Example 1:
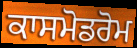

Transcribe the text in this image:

ਕਾਸਮੋਡਰੋਮ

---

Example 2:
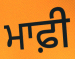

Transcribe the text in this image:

ਮਾਫ਼ੀ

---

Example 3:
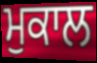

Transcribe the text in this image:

ਮੁਕਾਲ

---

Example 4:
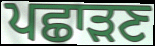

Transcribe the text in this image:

ਪਛਾੜਣ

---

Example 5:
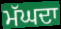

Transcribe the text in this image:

ਮੱਘਦਾ